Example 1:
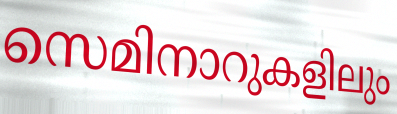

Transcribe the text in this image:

സെമിനാറുകളിലും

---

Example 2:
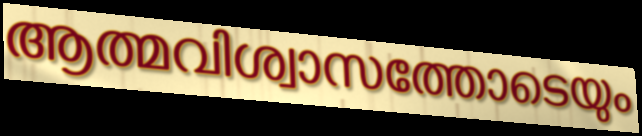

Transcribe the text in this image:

ആത്മവിശ്വാസത്തോടെയും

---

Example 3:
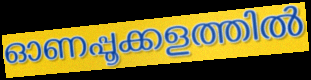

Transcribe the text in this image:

ഓണപ്പൂക്കളത്തിൽ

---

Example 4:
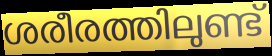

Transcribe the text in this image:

ശരീരത്തിലുണ്ട്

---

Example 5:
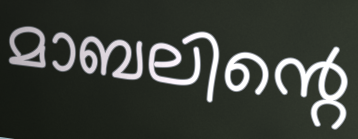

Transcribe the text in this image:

മാബലിന്റെ